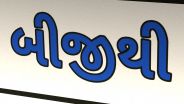
બીજીથી